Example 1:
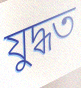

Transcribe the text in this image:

যুদ্ধত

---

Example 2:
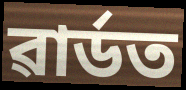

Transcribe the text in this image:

ৱাৰ্ডত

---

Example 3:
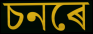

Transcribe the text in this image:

চনৰে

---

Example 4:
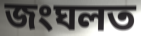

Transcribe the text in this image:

জংঘলত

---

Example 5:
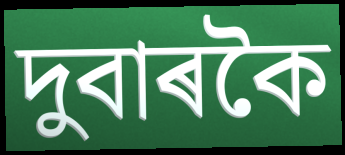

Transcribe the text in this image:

দুবাৰকৈ